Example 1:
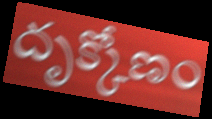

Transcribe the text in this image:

దృక్కోణం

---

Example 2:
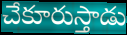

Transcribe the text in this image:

చేకూరుస్తాడు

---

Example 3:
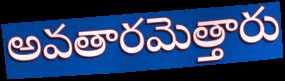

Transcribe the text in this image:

అవతారమెత్తారు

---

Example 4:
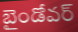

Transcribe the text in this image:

బైండోవర్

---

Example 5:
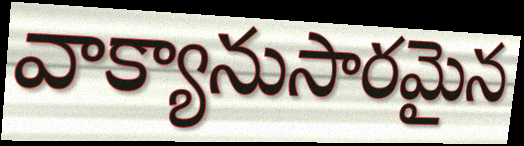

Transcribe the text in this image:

వాక్యానుసారమైన